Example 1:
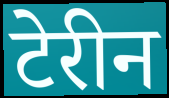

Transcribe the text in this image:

टेरीन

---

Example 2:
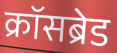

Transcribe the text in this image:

क्रॉसब्रेड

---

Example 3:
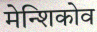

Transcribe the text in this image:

मेन्शिकोव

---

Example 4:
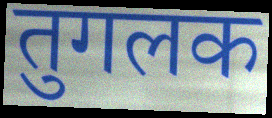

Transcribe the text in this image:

तुगलक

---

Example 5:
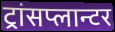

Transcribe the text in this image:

ट्रांसप्लान्टर